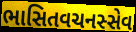
ભાસિતવચનસ્સેવ